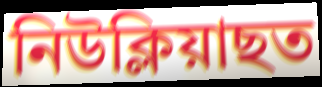
নিউক্লিয়াছত